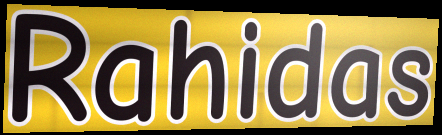
Rahidas